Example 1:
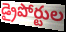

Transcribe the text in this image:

డ్రైపోర్టుల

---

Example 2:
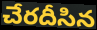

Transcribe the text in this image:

చేరదీసిన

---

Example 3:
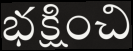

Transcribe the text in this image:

భక్షించి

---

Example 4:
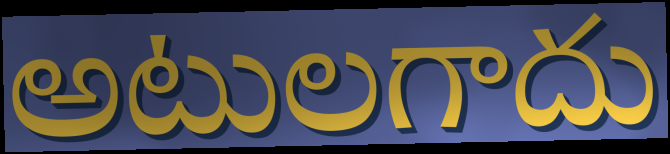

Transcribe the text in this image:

అటులగాదు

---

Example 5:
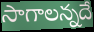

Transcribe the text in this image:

సాగాలన్నదే